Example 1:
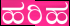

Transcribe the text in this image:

ಹರಿಹ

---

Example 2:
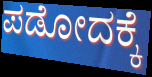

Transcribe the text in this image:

ಪಡೋದಕ್ಕೆ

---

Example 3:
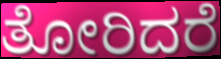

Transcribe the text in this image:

ತೋರಿದರೆ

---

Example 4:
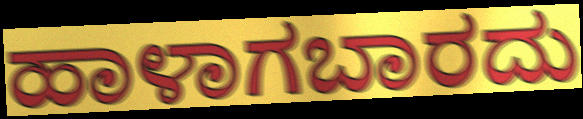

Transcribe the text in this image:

ಹಾಳಾಗಬಾರದು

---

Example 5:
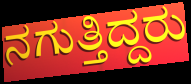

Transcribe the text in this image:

ನಗುತ್ತಿದ್ದರು